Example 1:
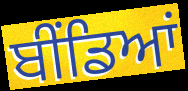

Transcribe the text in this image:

ਬੀਂਡਿਆਂ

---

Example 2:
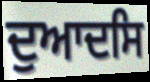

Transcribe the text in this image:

ਦੁਆਦਸਿ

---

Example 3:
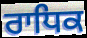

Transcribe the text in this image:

ਰਾਧਿਕ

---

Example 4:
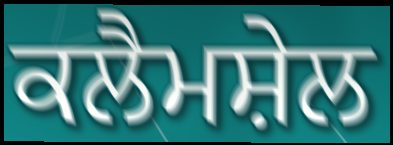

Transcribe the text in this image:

ਕਲੈਮਸ਼ੇਲ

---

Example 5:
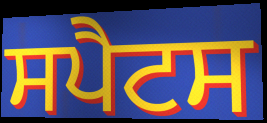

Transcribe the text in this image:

ਸਪੈਟਸ